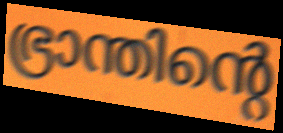
ഭ്രാന്തിന്റെ